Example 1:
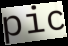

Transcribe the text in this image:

pic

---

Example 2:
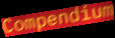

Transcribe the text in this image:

Compendium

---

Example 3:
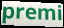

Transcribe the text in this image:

premi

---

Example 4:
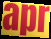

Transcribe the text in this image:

apr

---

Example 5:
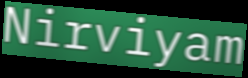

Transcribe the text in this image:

Nirviyam